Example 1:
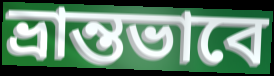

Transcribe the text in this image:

ভ্রান্তভাবে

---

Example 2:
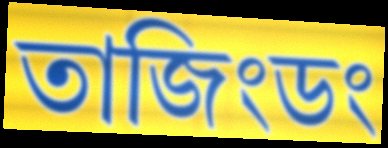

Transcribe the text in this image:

তাজিংডং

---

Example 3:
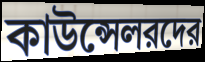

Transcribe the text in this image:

কাউন্সেলরদের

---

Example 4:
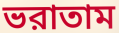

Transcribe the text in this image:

ভরাতাম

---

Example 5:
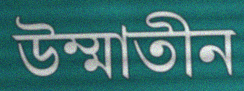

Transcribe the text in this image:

উম্মাতীন